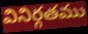
వినిర్గతము